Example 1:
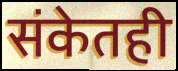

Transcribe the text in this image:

संकेतही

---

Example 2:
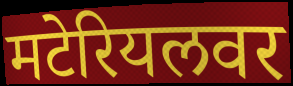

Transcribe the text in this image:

मटेरियलवर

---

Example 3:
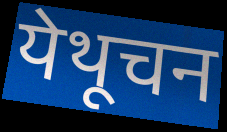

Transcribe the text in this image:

येथूचन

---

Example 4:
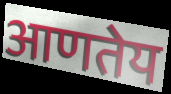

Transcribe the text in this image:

आणतेय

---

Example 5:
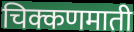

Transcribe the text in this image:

चिक्कणमाती